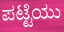
ಪಟ್ಟೆಯು